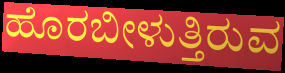
ಹೊರಬೀಳುತ್ತಿರುವ